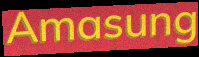
Amasung